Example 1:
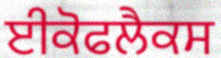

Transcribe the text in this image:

ਈਕੋਫਲੈਕਸ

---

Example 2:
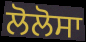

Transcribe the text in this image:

ਲੋਲੋਸਾ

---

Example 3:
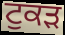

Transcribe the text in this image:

ਟੁਕੜ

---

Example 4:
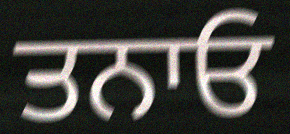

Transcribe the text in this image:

ਤਨਾਓ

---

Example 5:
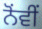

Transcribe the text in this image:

ਨੋਂਵੀਂ